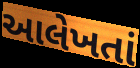
આલેખતાં